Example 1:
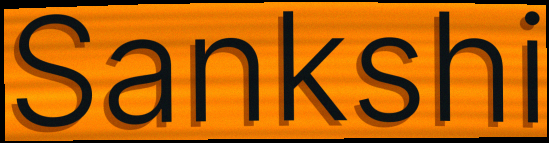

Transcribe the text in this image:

Sankshi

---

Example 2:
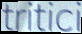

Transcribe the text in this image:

tritici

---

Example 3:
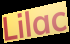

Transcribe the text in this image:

Lilac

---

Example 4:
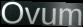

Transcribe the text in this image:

Ovum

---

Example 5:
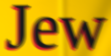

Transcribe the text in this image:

Jew